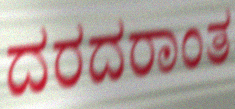
ದರದರಾಂತ